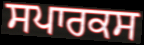
ਸਪਾਰਕਸ